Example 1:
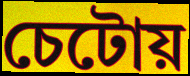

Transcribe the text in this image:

চেটোয়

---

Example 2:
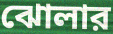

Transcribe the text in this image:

ঝোলার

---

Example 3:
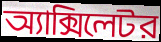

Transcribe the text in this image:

অ্যাক্সিলেটর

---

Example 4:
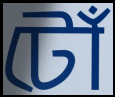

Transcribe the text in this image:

টোঁ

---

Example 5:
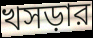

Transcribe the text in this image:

খসড়ার